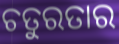
ଚତୁରତାର